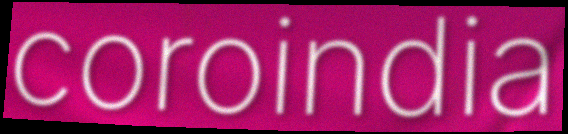
coroindia